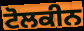
ਟੋਲਕੀਨ